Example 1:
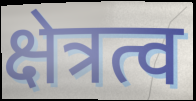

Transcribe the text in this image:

क्षेत्रत्व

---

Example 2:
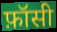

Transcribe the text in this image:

फ़ॉसी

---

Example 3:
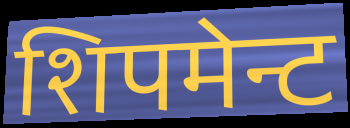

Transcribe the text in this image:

शिपमेन्ट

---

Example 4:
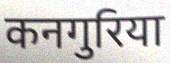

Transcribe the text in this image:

कनगुरिया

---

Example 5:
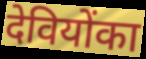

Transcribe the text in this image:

देवियोंका